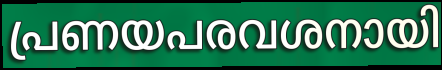
പ്രണയപരവശനായി